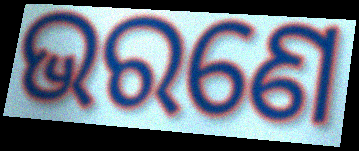
ଭରଣେ